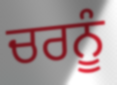
ਚਰਨੂੰ